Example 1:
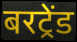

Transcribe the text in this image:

बरट्रेंड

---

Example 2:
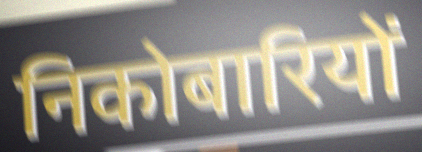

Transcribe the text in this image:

निकोबारियों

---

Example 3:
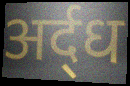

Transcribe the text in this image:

अर्द्ध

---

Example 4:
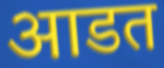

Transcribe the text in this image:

आडत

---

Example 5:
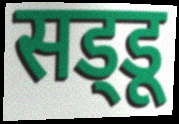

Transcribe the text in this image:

सड्‌डू